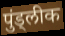
पुंड्लीक